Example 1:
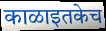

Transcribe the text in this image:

काळाइतकेच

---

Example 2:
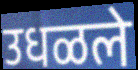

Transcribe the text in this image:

उधळले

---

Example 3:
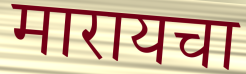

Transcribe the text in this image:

मारायचा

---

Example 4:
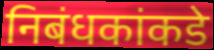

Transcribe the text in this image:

निबंधकांकडे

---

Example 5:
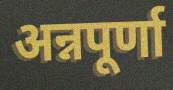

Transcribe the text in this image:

अन्नपूर्णा